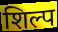
शिल्‍प